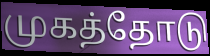
முகத்தோடு